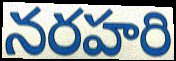
నరహరి